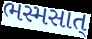
ભસ્મસાત્